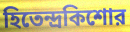
হিতেন্দ্রকিশোর